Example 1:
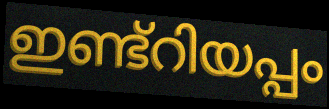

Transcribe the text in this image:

ഇണ്ട്റിയപ്പം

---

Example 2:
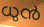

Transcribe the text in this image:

ധുൻ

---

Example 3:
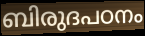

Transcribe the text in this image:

ബിരുദപഠനം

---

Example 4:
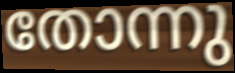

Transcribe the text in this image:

തോന്നു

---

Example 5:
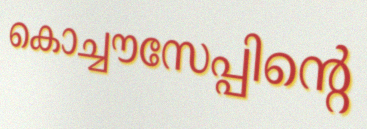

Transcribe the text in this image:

കൊച്ചൗസേപ്പിന്റെ